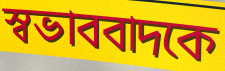
স্বভাববাদকে